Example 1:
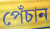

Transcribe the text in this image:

পেঁচান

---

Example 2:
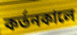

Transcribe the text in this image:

কর্তনকালে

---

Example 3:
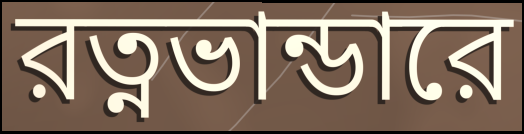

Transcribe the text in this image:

রত্নভান্ডারে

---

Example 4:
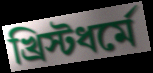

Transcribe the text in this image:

খ্রিস্টধর্মে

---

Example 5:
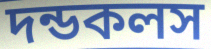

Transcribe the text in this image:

দন্ডকলস